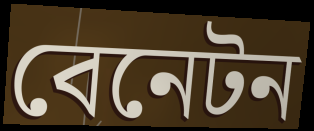
বেনেটন